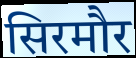
सिरमौर